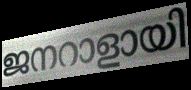
ജനറാളായി